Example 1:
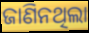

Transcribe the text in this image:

ଜାଣିନଥିଲା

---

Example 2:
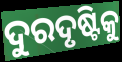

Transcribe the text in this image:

ଦୁରଦୃଷ୍ଟିକୁ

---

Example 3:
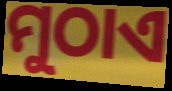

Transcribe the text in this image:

ମୁଠାଏ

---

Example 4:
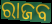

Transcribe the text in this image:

ରାଜବ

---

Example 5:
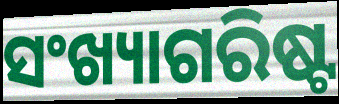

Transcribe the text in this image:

ସଂଖ୍ୟାଗରିଷ୍ଟ